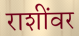
राशींवर